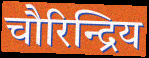
चौरिन्द्रिय